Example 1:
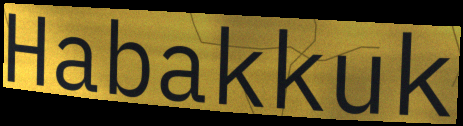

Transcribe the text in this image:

Habakkuk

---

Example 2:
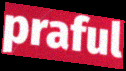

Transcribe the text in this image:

praful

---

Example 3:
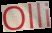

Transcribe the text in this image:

Olli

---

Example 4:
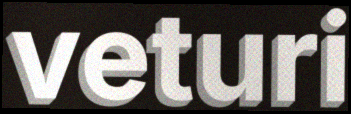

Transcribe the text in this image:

veturi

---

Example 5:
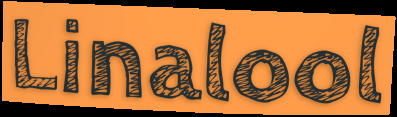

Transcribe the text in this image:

Linalool